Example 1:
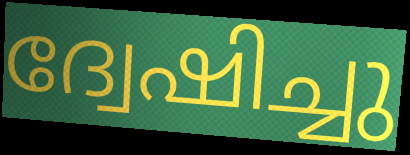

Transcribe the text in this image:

ദ്വേഷിച്ചു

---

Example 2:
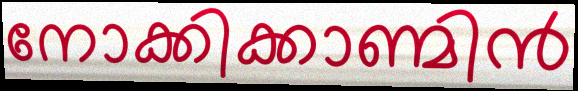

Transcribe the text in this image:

നോക്കിക്കാണ്മിൻ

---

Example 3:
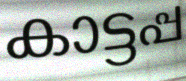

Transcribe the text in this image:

കാട്ടപ്പ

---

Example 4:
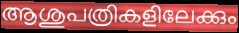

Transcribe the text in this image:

ആശുപത്രികളിലേക്കും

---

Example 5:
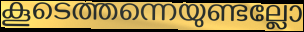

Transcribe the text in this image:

കൂടെത്തന്നെയുണ്ടല്ലോ